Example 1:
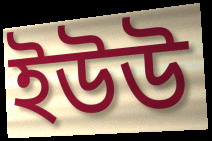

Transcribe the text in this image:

ইউউ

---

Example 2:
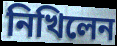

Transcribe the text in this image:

নিখিলেন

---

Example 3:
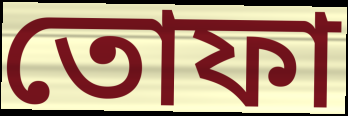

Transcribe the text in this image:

তোফা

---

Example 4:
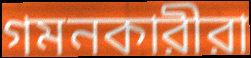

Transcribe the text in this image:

গমনকারীরা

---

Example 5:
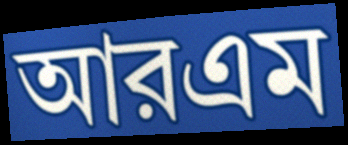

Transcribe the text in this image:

আরএম